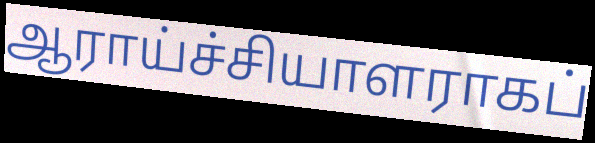
ஆராய்ச்சியாளராகப்